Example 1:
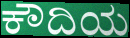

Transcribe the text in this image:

ಕೌದಿಯ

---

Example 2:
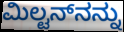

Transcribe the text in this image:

ಮಿಲ್ಟನ್‌ನನ್ನು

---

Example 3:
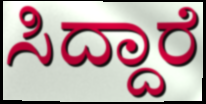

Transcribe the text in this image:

ಸಿದ್ದಾರೆ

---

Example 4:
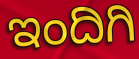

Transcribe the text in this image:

ಇಂದಿಗಿ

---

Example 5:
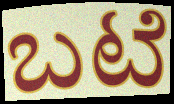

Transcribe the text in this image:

ಬಟೆ